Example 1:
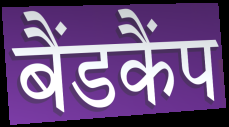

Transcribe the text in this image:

बैंडकैंप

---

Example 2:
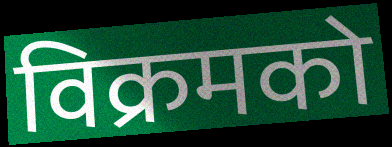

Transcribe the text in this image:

विक्रमको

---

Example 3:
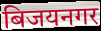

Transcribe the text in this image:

बिजयनगर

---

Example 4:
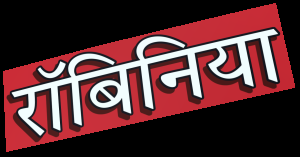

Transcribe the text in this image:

रॉबिनिया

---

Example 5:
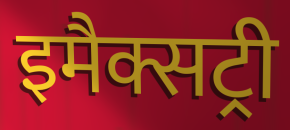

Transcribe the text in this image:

इमैक्सट्री